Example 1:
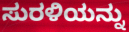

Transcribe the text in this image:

ಸುರಳಿಯನ್ನು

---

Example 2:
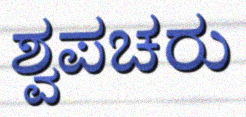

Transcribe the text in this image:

ಶ್ವಪಚರು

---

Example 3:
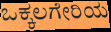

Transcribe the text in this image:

ಒಕ್ಕಲಗೇರಿಯ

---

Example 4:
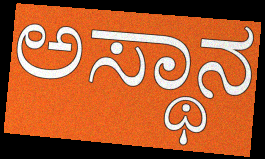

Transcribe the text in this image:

ಅಸ್ಥಾನ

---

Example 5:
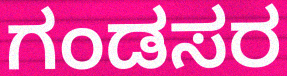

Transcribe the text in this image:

ಗಂಡಸರ